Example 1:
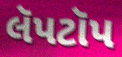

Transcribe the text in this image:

લૅપટૉપ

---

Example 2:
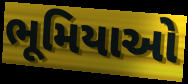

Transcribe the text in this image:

ભૂમિયાઓ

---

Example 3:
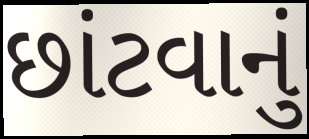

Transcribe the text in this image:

છાંટવાનું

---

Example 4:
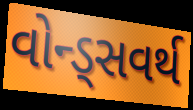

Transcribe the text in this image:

વોન્ડ્સવર્થ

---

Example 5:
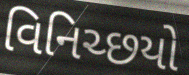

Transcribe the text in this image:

વિનિચ્છયો